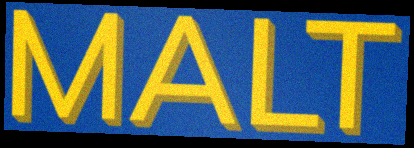
MALT